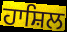
ਹਾਸ਼ਿਲ